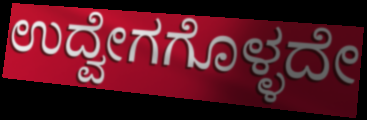
ಉದ್ವೇಗಗೊಳ್ಳದೇ